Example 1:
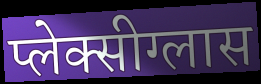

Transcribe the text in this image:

प्लेक्सीग्लास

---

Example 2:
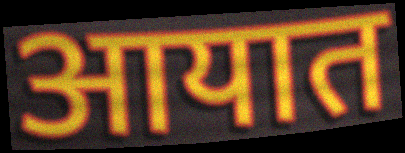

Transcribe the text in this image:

आयात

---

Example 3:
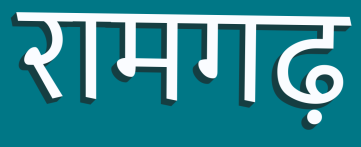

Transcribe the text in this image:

रामगढ़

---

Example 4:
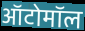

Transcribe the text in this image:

ऑटोमॉल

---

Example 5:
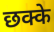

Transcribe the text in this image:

छक्के